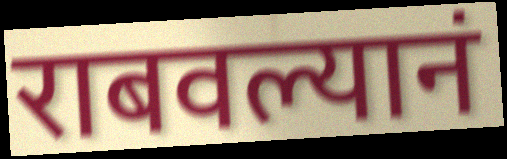
राबवल्यानं